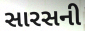
સારસની